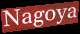
Nagoya